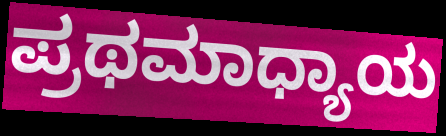
ಪ್ರಥಮಾಧ್ಯಾಯ